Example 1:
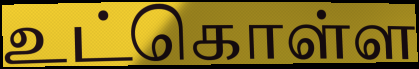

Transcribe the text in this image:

உட்கொள்ள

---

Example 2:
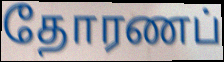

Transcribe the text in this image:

தோரணப்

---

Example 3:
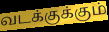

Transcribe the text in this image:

வடக்குக்கும்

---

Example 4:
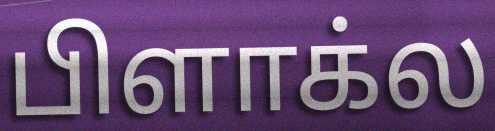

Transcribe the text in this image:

பிளாக்ல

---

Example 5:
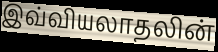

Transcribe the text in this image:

இவ்வியலாதலின்